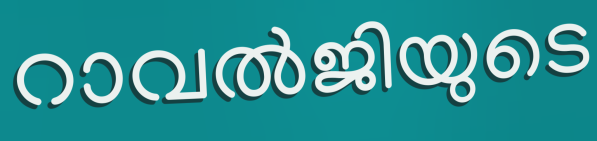
റാവൽജിയുടെ